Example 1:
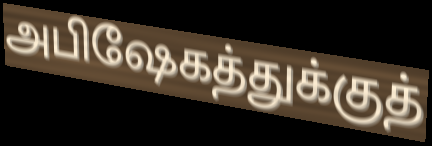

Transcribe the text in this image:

அபிஷேகத்துக்குத்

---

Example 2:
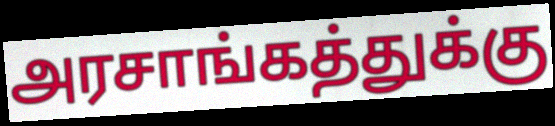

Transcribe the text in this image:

அரசாங்கத்துக்கு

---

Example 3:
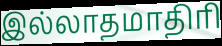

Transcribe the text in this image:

இல்லாதமாதிரி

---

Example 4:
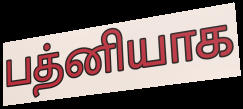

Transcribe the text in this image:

பத்னியாக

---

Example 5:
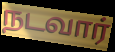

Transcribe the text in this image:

நடவார்